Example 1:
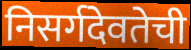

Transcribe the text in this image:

निसर्गदेवतेची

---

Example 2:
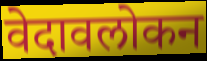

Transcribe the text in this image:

वेदावलोकन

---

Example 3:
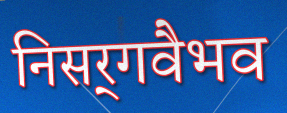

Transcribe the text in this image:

निसर्गवैभव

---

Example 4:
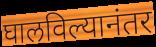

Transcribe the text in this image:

घालविल्यानंतर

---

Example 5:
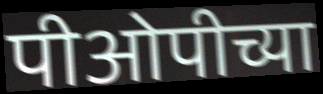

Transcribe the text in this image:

पीओपीच्या